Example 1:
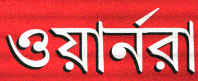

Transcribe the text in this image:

ওয়ার্নরা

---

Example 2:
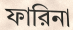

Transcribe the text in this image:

ফারিনা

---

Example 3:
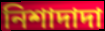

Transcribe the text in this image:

নিশাদাদা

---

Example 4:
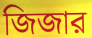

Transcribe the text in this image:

জিজার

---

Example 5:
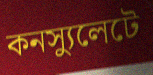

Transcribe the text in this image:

কনস্যুলেটে